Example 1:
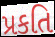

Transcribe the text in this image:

પ્રકતિ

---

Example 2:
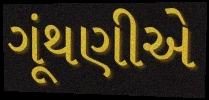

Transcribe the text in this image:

ગૂંથણીએ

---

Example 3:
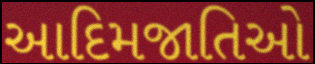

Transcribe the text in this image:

આદિમજાતિઓ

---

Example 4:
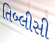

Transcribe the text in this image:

તિબ્લીસી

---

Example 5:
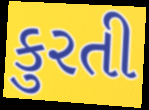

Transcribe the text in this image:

કુરતી